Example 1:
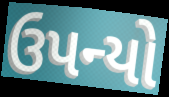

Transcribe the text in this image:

ઉપન્યો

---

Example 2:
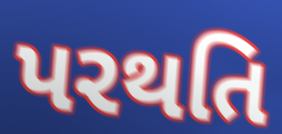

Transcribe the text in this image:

પરથતિ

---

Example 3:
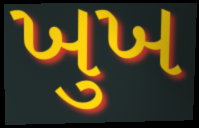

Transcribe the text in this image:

ખુખ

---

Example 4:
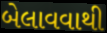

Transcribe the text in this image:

બેલાવવાથી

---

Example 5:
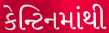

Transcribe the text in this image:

કેન્ટિનમાંથી